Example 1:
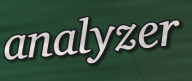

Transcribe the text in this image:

analyzer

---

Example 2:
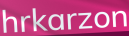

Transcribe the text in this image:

hrkarzon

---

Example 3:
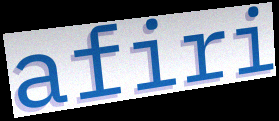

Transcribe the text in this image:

afiri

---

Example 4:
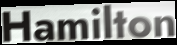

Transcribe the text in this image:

Hamilton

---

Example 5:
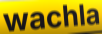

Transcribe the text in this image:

wachla